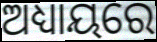
ଅଧ୍ଯାୟରେ